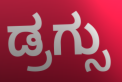
ಡ್ರಗ್ಸು